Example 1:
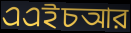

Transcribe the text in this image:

এএইচআর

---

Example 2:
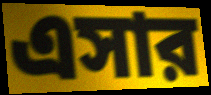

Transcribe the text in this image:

এসার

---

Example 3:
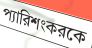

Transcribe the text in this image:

প্যারিশংকরকে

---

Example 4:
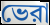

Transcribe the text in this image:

ভেরা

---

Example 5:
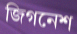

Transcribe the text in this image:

জিগনেশ